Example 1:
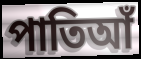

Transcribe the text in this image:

পাতিআঁ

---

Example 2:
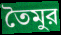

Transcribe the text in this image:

তৈমুর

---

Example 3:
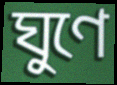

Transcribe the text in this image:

ঘুণে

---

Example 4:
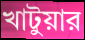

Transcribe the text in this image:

খাটুয়ার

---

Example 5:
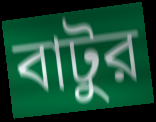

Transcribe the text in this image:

বাটুর